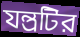
যন্ত্রটির